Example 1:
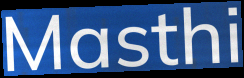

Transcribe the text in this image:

Masthi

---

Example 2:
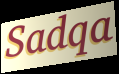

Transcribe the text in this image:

Sadqa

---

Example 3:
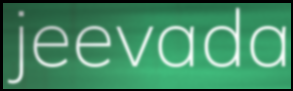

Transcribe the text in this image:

jeevada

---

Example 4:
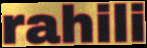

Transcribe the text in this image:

rahili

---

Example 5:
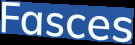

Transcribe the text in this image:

Fasces